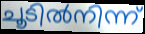
ചൂടിൽനിന്ന്